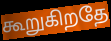
கூறுகிறதே